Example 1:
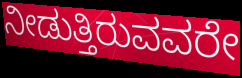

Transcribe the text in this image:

ನೀಡುತ್ತಿರುವವರೇ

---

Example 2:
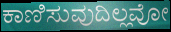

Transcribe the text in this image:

ಕಾಣಿಸುವುದಿಲ್ಲವೋ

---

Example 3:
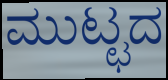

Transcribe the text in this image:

ಮುಟ್ಟದ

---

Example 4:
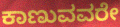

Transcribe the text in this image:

ಕಾಣುವವರೇ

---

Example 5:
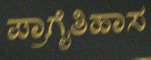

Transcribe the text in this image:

ಪ್ರಾಗೈತಿಹಾಸ